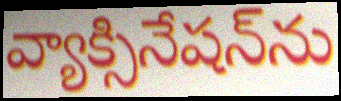
వ్యాక్సినేషన్‌ను